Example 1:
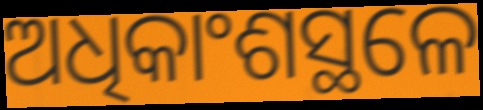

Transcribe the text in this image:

ଅଧିକାଂଶସ୍ଥଳେ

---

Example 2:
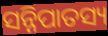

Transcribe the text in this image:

ସନ୍ନିପାତସ୍ୟ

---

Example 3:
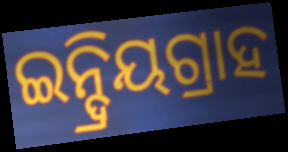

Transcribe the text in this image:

ଇନ୍ଦ୍ରିୟଗ୍ରାହ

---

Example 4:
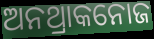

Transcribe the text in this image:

ଅନଥ୍ରାକନୋଜ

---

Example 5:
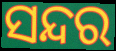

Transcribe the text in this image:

ସନ୍ଦର